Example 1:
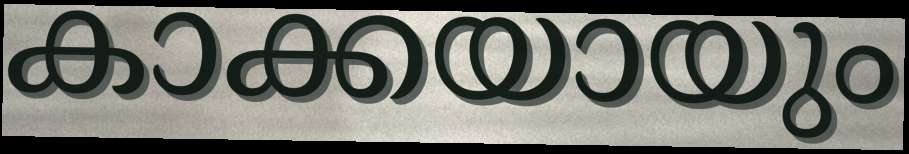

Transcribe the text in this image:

കാക്കയായും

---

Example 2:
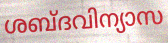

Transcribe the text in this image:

ശബ്ദവിന്യാസ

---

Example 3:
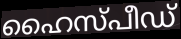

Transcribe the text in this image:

ഹൈസ്പീഡ്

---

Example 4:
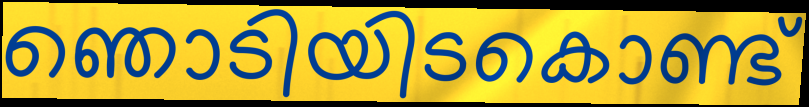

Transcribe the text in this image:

ഞൊടിയിടകൊണ്ട്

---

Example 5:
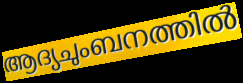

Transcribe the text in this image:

ആദ്യചുംബനത്തിൽ